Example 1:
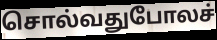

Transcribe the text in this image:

சொல்வதுபோலச்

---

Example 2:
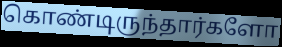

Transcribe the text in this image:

கொண்டிருந்தார்களோ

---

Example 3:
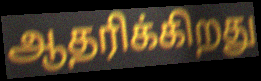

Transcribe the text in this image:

ஆதரிக்கிறது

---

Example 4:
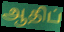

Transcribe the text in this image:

ஆதிப்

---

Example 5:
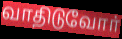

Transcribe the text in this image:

வாதிடுவோர்